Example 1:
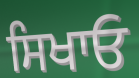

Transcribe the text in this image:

ਸਿਖਾਓ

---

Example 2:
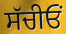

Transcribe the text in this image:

ਸੱਚੀਓਂ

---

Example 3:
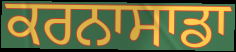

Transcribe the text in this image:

ਕਰਨਾਸਾਡਾ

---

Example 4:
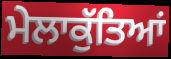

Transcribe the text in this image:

ਮੇਲਾਕੁੱਤਿਆਂ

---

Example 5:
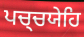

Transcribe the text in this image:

ਪਚ੍ਚਯੇਹਿ